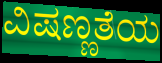
ವಿಷಣ್ಣತೆಯ